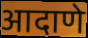
आदाणे